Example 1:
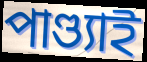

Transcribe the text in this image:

পাণ্ড্যাই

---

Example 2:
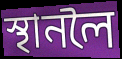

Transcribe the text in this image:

স্থানলৈ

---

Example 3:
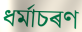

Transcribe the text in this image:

ধৰ্মাচৰণ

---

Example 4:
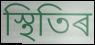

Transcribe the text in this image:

স্থিতিৰ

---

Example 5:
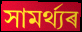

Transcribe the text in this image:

সামৰ্থ্যৰ